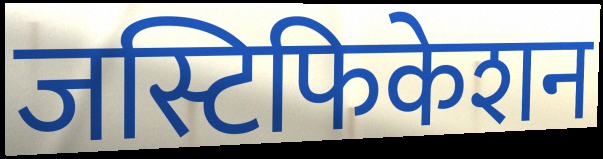
जस्टिफिकेशन